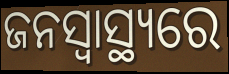
ଜନସ୍ବାସ୍ଥ୍ୟରେ